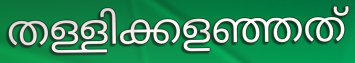
തള്ളിക്കളഞ്ഞത്